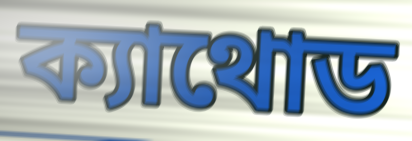
ক্যাথোড